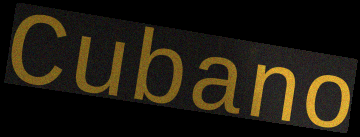
Cubano